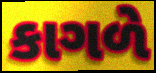
કાગળે